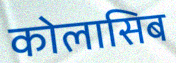
कोलासिब